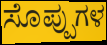
ಸೊಪ್ಪುಗಳ